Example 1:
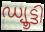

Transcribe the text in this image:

ഡ്യൂട്ടി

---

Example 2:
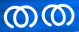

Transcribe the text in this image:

തത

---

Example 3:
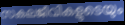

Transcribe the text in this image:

സകലജീവികളുടെയും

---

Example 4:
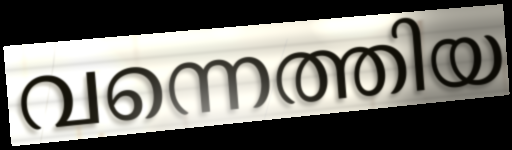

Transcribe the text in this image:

വന്നെത്തിയ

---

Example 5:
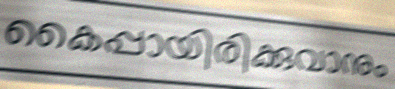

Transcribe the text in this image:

കൈപ്പായിരിക്കുവാനും